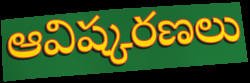
ఆవిష్కరణలు